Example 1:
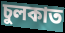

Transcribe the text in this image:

চুলকাত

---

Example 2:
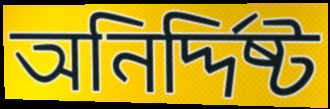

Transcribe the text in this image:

অনির্দ্দিষ্ট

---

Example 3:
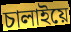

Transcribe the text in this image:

চালাইয়ে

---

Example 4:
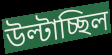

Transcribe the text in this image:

উল্টাচ্ছিল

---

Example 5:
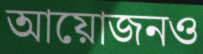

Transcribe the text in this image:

আয়োজনও